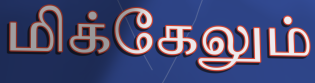
மிக்கேலும்